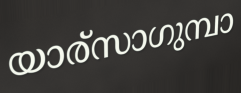
യാര്സാഗുമ്പാ